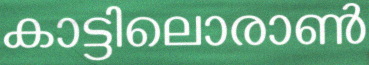
കാട്ടിലൊരാൺ